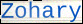
Zohary